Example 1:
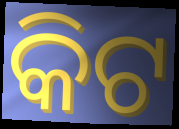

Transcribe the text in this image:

କିଟ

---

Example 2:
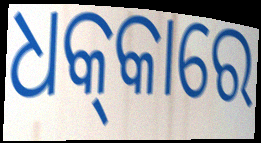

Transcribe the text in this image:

ଧକ୍‍କାରେ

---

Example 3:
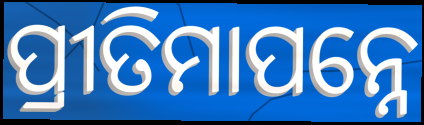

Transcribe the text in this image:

ପ୍ରୀତିମାପନ୍ନେ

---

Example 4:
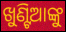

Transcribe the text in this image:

ଖୁଣ୍ଟିଆଙ୍କୁ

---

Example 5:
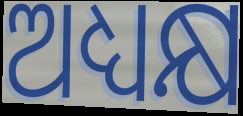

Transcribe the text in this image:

ଅଧ୍ୟକ୍ଷ